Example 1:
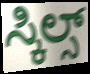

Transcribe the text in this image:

ಸ್ಕಿಲ್ಸ್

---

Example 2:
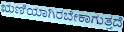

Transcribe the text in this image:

ಋಣಿಯಾಗಿರಬೇಕಾಗುತ್ತದೆ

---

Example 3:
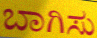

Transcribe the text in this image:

ಬಾಗಿಸು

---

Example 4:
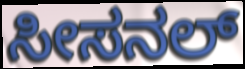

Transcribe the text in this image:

ಸೀಸನಲ್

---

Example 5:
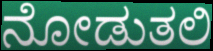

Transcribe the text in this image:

ನೋಡುತಲಿ